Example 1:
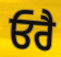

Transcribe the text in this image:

ਓਰੈ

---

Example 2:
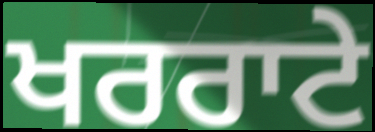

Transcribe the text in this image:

ਖਰਰਾਟੇ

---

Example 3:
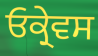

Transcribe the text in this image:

ਓਕ੍ਰੇਵਸ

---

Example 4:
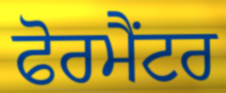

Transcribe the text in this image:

ਫੋਰਮੈਂਟਰ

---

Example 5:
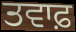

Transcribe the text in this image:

ਤਵਾਫ਼